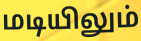
மடியிலும்